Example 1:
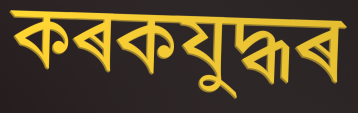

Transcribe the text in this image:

কৰকযুদ্ধৰ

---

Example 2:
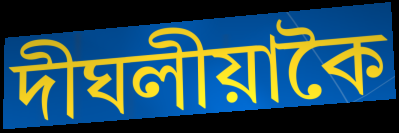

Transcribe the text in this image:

দীঘলীয়াকৈ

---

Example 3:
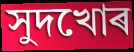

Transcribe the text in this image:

সুদখোৰ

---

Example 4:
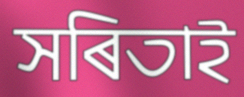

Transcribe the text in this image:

সৰিতাই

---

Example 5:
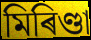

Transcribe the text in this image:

মিৰিণ্ডা